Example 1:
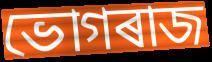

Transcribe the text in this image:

ভোগৰাজ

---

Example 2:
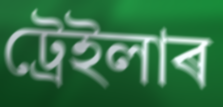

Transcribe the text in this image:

ট্ৰেইলাৰ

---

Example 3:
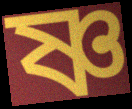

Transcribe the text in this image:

ষ্ণ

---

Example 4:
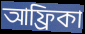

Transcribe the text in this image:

আফ্ৰিকা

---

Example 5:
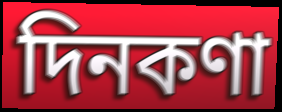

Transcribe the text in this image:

দিনকণা